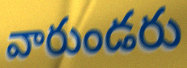
వారుండరు